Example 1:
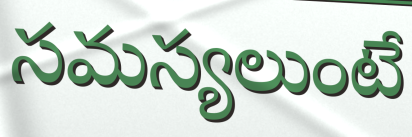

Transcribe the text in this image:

సమస్యలుంటే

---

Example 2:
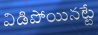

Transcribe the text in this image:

విడిపోయినట్టే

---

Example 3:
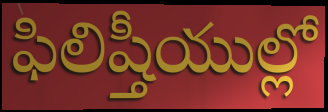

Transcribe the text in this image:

ఫిలిష్తీయుల్లో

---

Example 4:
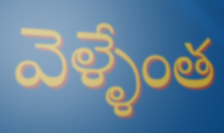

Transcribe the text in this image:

వెళ్ళేంత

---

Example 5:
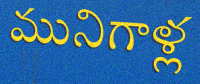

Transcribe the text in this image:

మునిగాళ్ల